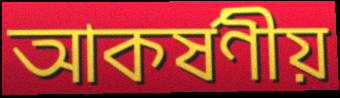
আকৰ্ষণীয়